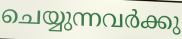
ചെയ്യുന്നവർക്കു